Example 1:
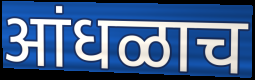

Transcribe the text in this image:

आंधळाच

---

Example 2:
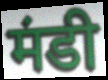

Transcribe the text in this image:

मंडी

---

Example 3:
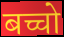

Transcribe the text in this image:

बच्चो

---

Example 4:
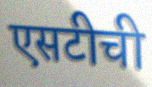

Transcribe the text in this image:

एसटीची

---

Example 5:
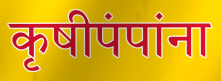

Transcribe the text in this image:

कृषीपंपांना